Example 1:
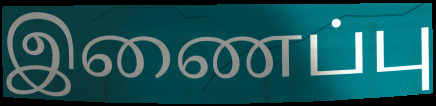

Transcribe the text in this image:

இணைப்பு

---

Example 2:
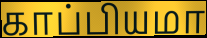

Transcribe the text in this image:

காப்பியமா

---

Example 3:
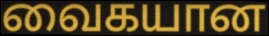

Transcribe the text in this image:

வைகயான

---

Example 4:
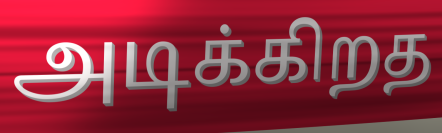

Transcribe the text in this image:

அடிக்கிறத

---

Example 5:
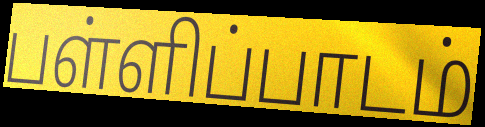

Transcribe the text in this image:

பள்ளிப்பாடம்